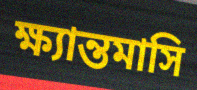
ক্ষ্যান্তমাসি